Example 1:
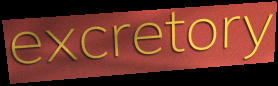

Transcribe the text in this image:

excretory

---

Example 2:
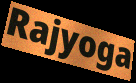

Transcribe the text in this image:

Rajyoga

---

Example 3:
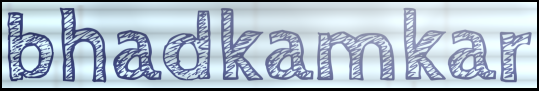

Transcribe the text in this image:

bhadkamkar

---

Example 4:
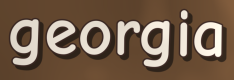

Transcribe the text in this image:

georgia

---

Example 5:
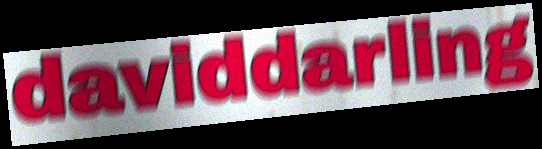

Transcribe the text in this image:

daviddarling